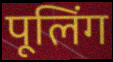
पूलिंग